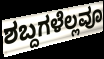
ಶಬ್ದಗಳೆಲ್ಲವೂ